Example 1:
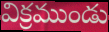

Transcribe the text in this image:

విక్రముండు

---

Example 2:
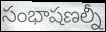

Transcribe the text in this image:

సంభాషణల్నీ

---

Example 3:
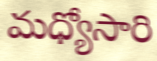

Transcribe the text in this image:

మధ్యోసారి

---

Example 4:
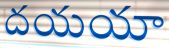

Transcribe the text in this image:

దయయా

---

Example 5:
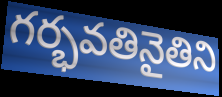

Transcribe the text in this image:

గర్భవతినైతిని